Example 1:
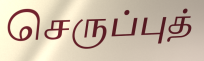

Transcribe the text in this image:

செருப்புத்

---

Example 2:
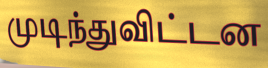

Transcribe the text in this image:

முடிந்துவிட்டன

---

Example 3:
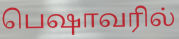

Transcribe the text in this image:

பெஷாவரில்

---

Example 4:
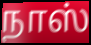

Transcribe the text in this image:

நாஸ்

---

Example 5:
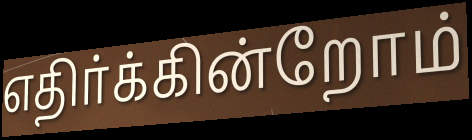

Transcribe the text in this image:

எதிர்க்கின்றோம்